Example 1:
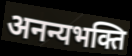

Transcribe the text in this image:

अनन्यभक्ति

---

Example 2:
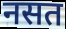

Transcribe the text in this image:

नसत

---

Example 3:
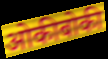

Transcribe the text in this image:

ओकीबोकी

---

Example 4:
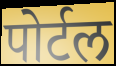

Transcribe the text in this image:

पोर्टल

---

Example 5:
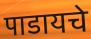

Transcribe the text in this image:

पाडायचे